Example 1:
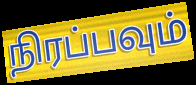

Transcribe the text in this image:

நிரப்பவும்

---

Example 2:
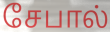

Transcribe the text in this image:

சேபால்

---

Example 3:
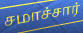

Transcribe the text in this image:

சமாச்சார்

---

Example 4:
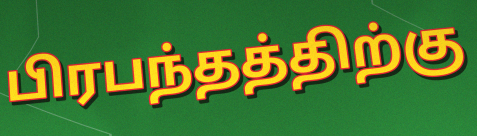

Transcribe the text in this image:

பிரபந்தத்திற்கு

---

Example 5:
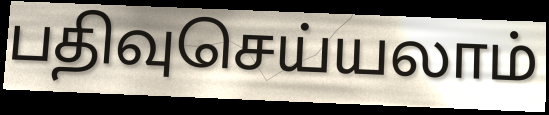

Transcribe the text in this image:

பதிவுசெய்யலாம்